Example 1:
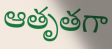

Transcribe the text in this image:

ఆతృతగా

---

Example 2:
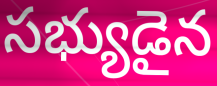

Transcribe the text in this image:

సభ్యుడైన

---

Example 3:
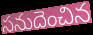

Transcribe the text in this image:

సనుదెంచిన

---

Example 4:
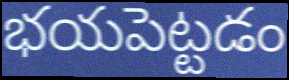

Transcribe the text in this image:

భయపెట్టడం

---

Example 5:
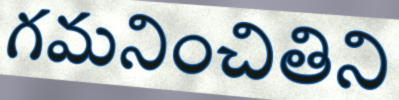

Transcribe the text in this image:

గమనించితిని